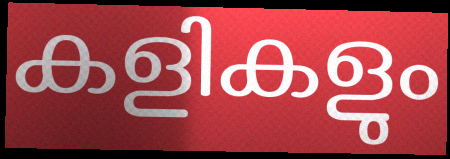
കളികളും